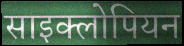
साइक्लोपियन